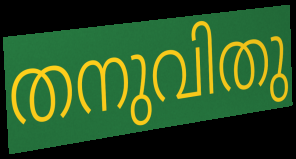
തനുവിതു